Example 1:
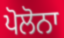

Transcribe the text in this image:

ਪੋਲੋਨਾ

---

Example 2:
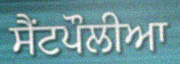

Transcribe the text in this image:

ਸੈਂਟਪੌਲੀਆ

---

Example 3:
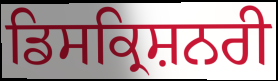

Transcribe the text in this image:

ਡਿਸਕ੍ਰਿਸ਼ਨਰੀ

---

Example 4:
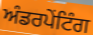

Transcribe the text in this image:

ਅੰਡਰਪੇਂਟਿੰਗ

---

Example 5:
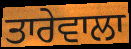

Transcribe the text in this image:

ਤਾਰੇਵਾਲਾ